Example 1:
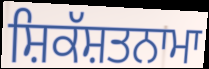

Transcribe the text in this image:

ਸ਼ਿਕੱਸ਼ਤਨਾਮਾ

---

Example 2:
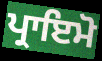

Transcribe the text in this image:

ਪ੍ਰਾਇਮੋ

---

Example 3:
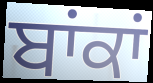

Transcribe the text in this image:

ਬਾਂਕਾਂ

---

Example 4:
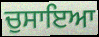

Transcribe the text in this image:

ਚੁਸਾਇਆ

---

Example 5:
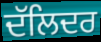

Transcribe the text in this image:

ਦੱਲਿਦਰ